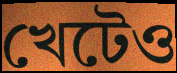
খেটেও